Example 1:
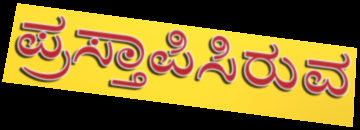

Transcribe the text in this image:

ಪ್ರಸ್ತಾಪಿಸಿರುವ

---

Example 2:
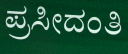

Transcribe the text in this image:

ಪ್ರಸೀದಂತಿ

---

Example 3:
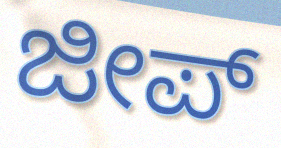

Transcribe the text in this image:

ಜೀಪ್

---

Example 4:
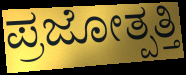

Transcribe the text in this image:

ಪ್ರಜೋತ್ಪತ್ತಿ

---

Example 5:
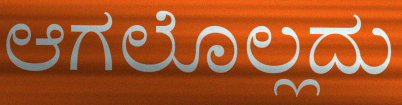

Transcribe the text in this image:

ಆಗಲೊಲ್ಲದು